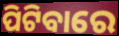
ପିଟିବାରେ